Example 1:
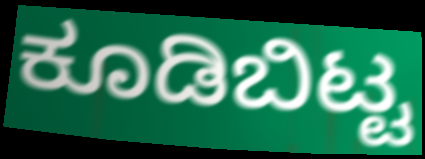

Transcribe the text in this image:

ಕೂಡಿಬಿಟ್ಟ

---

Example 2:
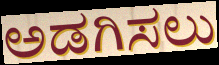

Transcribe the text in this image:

ಅಡಗಿಸಲು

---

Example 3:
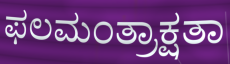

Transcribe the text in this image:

ಫಲಮಂತ್ರಾಕ್ಷತಾ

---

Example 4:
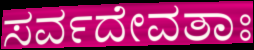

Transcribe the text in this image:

ಸರ್ವದೇವತಾಃ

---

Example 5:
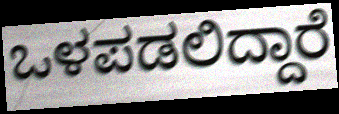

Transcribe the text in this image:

ಒಳಪಡಲಿದ್ದಾರೆ